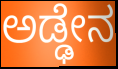
ಅಡ್ಢೇನ